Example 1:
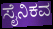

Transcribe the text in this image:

ಸೈನಿಕವ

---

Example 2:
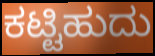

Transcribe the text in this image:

ಕಟ್ಟಿಹುದು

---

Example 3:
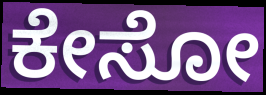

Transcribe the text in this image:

ಕೇಸೋ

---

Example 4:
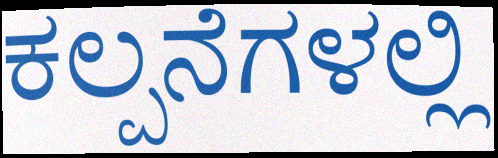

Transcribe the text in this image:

ಕಲ್ಪನೆಗಳಲ್ಲಿ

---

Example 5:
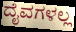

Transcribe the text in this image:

ದೈವಗಳಲ್ಲ